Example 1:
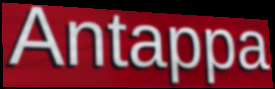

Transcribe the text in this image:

Antappa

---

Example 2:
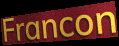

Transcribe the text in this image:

Francon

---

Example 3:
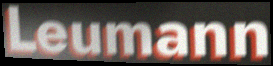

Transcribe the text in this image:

Leumann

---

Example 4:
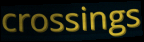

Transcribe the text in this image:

crossings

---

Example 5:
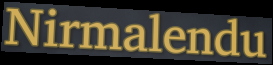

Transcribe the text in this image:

Nirmalendu